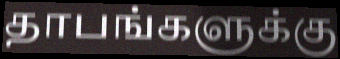
தாபங்களுக்கு